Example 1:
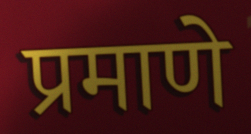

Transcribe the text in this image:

प्रमाणे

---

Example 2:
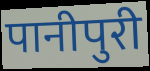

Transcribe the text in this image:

पानीपुरी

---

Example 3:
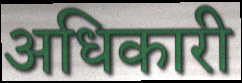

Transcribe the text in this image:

अधिकारी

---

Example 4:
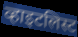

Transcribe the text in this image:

व्हाइटलिस्ट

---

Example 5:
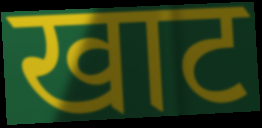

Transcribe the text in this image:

खाट